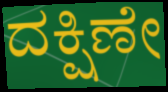
ದಕ್ಷಿಣೇ